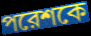
পরেশকে